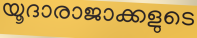
യൂദാരാജാക്കളുടെ